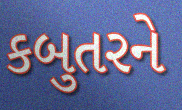
કબુતરને